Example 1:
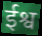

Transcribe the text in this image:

ईश्व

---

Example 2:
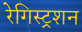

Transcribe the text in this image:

रेगिस्ट्रशन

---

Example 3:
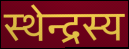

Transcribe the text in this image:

स्थेन्द्रस्य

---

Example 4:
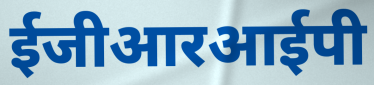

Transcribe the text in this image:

ईजीआरआईपी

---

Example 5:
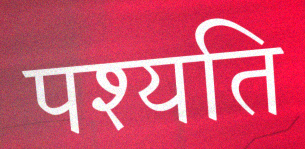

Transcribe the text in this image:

पश्यति